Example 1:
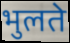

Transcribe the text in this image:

भुलते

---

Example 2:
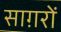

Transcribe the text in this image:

साग़रों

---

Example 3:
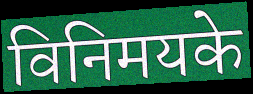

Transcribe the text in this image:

विनिमयके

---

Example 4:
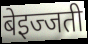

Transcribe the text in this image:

बेइज्जती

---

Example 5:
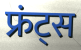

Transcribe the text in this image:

फ्रंट्स